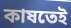
কাষতেই